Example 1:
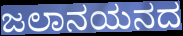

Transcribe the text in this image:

ಜಲಾನಯನದ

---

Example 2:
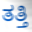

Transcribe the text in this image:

ತತ್ತಿ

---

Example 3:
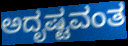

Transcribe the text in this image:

ಅದೃಷ್ಟವಂತ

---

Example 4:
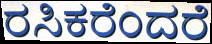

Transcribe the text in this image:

ರಸಿಕರೆಂದರೆ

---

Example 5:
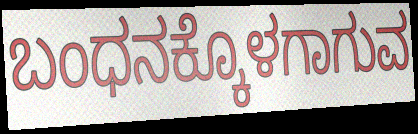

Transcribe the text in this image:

ಬಂಧನಕ್ಕೊಳಗಾಗುವ